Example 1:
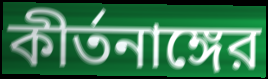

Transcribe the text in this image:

কীর্তনাঙ্গের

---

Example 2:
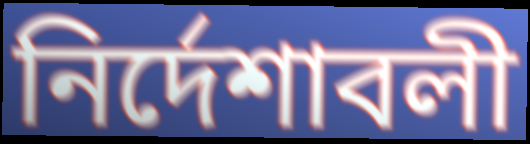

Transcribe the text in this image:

নির্দেশাবলী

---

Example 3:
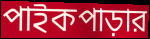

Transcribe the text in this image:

পাইকপাড়ার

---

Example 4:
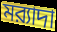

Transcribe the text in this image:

মর‍্যাদা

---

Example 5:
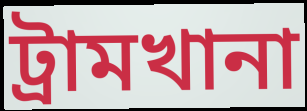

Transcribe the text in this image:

ট্রামখানা